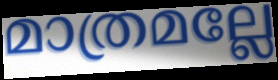
മാത്രമല്ലേ